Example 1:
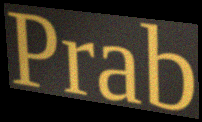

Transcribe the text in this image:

Prab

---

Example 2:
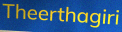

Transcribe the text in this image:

Theerthagiri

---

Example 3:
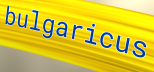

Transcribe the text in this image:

bulgaricus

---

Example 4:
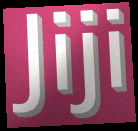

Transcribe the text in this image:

Jiji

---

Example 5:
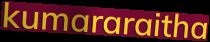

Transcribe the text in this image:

kumararaitha